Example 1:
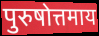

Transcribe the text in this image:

पुरुषोत्तमाय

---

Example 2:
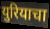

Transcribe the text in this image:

युरियाचा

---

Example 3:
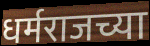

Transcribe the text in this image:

धर्मराजच्या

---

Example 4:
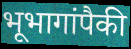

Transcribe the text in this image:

भूभागांपैकी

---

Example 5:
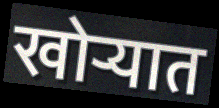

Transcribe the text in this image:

खोऱ्यात